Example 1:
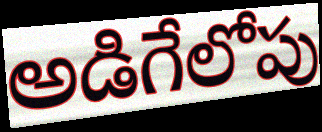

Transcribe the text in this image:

అడిగేలోపు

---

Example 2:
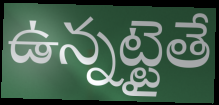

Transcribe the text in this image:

ఉన్నట్టైతే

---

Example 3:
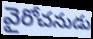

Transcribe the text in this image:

వైరోచనుడు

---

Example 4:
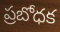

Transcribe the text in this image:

ప్రబోధక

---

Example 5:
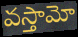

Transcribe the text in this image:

వస్తామో